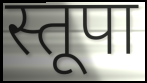
स्तूपा